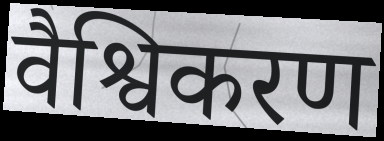
वैश्विकरण